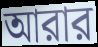
আরার